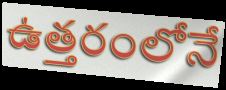
ఉత్తరంలోనే